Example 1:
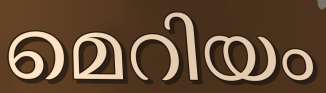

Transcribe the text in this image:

മെറിയം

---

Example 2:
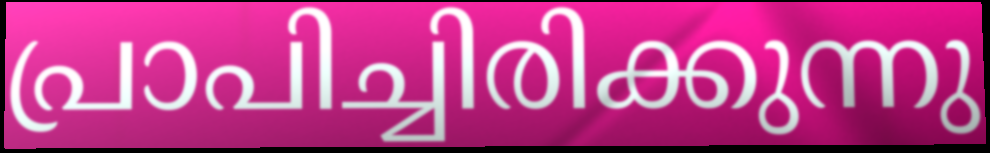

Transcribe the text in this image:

പ്രാപിച്ചിരിക്കുന്നു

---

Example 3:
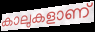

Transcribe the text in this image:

കാലുകളാണ്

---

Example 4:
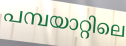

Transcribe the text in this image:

പമ്പയാറ്റിലെ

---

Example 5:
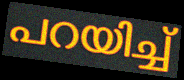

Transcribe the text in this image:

പറയിച്ച്